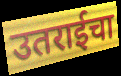
उतराईचा